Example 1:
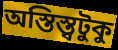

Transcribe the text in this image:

অস্তিস্ত্বটুকু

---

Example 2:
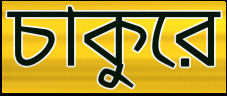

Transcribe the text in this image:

চাকুরে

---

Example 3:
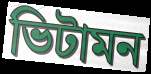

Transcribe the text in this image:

ভিটামন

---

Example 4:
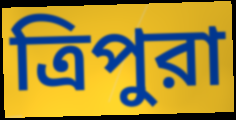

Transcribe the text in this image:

ত্রিপুরা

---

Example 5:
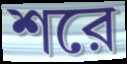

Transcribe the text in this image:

শরে